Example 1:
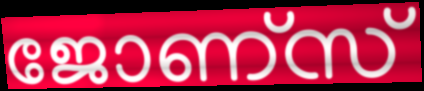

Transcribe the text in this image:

ജോണ്സ്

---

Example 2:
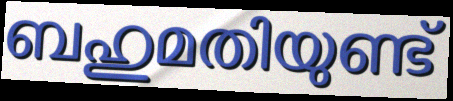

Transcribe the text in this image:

ബഹുമതിയുണ്ട്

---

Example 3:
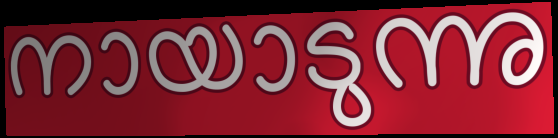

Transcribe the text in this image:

നായാടുന്നു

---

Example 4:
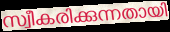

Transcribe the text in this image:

സ്വീകരിക്കുന്നതായി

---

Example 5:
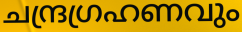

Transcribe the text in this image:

ചന്ദ്രഗ്രഹണവും